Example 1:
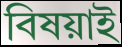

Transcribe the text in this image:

বিষয়াই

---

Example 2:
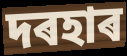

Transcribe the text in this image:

দৰহাৰ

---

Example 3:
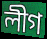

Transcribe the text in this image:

লীগ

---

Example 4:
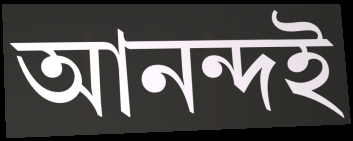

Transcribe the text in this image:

আনন্দই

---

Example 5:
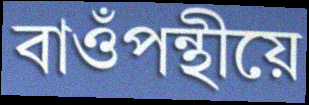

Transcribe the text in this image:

বাওঁপন্থীয়ে